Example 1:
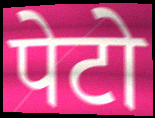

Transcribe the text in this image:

पेटो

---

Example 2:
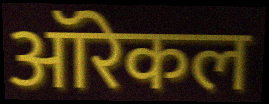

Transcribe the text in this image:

ऑरेकल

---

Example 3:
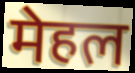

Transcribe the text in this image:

मेहल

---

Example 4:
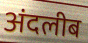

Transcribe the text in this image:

अंदलीब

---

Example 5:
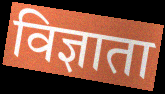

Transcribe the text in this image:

विज्ञाता